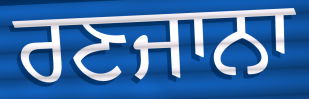
ਰਣਜਾਨਾ